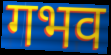
गभव